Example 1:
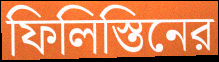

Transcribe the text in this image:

ফিলিস্তিনের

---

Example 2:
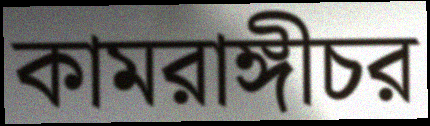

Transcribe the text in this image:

কামরাঙ্গীচর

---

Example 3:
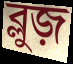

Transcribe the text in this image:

ব্লুজ়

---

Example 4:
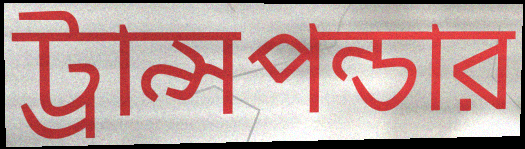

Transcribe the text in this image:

ট্রান্সপন্ডার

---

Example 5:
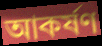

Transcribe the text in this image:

আকর্ষণ